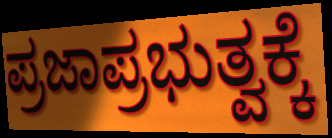
ಪ್ರಜಾಪ್ರಭುತ್ವಕ್ಕೆ